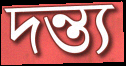
দন্ত্য